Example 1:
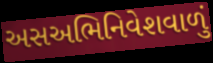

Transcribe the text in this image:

અસઅભિનિવેશવાળું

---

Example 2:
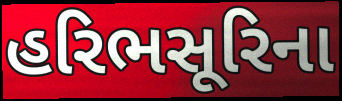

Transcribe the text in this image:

હરિભસૂરિના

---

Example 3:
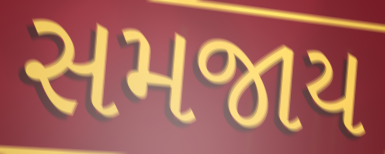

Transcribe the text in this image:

સમજાય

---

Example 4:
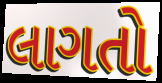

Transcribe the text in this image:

લાગતો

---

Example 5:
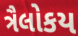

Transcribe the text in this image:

ત્રૈલોકય